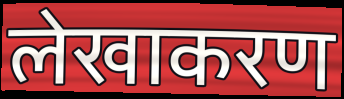
लेखाकरण